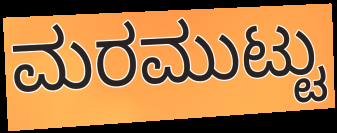
ಮರಮುಟ್ಟು